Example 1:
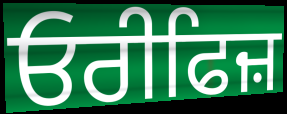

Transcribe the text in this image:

ਓਰੀਫਿਜ਼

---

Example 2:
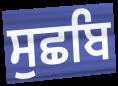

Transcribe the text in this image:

ਸੁਛਬਿ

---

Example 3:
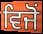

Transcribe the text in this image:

ਵਿਜੋਂ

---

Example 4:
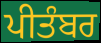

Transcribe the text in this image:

ਪੀਤੰਬਰ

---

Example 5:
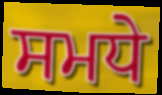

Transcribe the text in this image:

ਸਮਧੇ